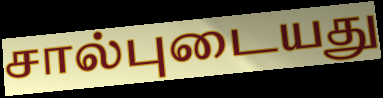
சால்புடையது